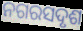
ନଗରସଦୃଶ